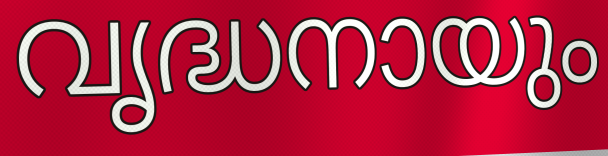
വൃദ്ധനായും